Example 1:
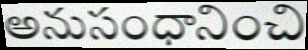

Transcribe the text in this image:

అనుసంధానించి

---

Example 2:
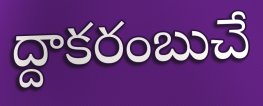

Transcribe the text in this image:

ద్దాకరంబుచే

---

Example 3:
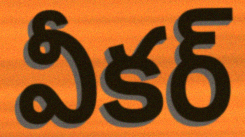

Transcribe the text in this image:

వీకర్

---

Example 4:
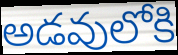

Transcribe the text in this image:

అడవులోకి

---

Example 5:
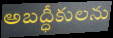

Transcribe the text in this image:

అబద్ధీకులను